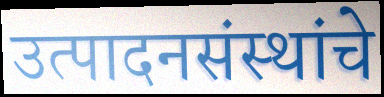
उत्पादनसंस्थांचे